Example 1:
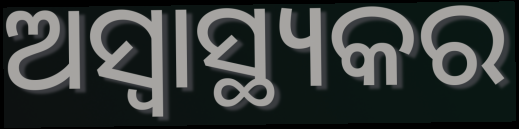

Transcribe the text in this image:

ଅସ୍ବାସ୍ଥ୍ୟକର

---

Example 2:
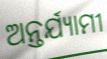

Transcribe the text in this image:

ଅନ୍ତର୍ଯ୍ୟାମୀ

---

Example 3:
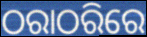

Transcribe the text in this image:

ଠରାଠରିରେ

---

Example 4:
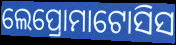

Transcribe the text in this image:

ଲେପ୍ରୋମାଟୋସିସ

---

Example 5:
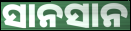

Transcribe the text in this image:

ସାନସାନ